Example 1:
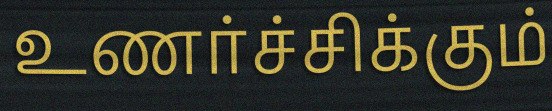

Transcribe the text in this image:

உணர்ச்சிக்கும்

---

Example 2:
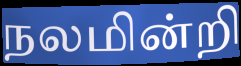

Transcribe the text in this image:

நலமின்றி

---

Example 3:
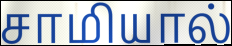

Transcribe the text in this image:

சாமியால்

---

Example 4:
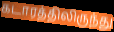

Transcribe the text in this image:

கடாரத்திலிருந்து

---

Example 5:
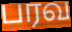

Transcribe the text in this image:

பரவ